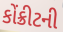
કોંક્રીટની